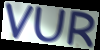
VUR